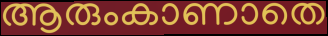
ആരുംകാണാതെ